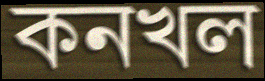
কনখল